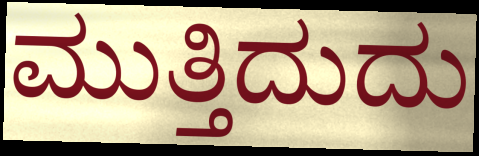
ಮುತ್ತಿದುದು